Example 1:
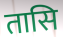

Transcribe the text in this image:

तासि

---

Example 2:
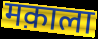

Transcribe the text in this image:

मक़ाला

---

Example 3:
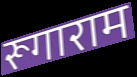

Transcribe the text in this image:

रूगाराम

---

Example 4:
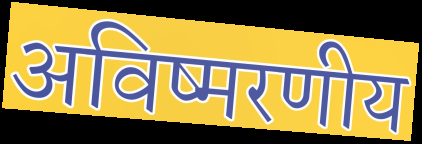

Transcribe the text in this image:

अविष्मरणीय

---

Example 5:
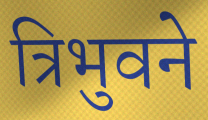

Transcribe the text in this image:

त्रिभुवने